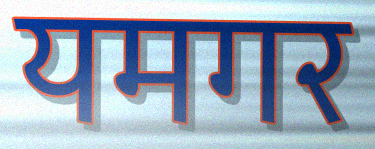
यमगर